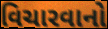
વિચારવાનો